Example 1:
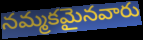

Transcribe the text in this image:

నమ్మకమైనవారు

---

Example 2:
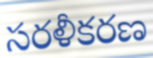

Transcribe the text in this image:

సరళీకరణ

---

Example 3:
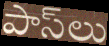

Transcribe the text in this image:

పాస్‌లు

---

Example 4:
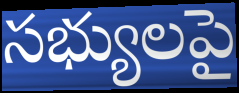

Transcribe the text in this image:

సభ్యులపై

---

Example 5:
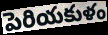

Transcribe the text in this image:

పెరియకుళం